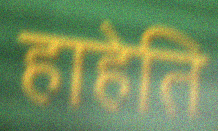
हाहेति